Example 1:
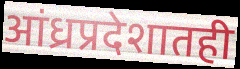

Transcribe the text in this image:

आंध्रप्रदेशातही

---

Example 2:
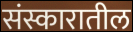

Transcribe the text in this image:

संस्कारातील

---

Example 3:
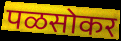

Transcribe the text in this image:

पळसोकर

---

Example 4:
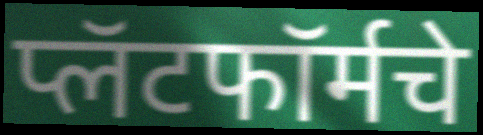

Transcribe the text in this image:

प्लॅटफॉर्मचे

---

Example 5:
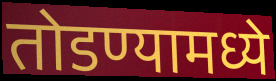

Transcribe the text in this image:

तोडण्यामध्ये